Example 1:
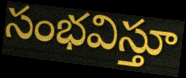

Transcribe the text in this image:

సంభవిస్తూ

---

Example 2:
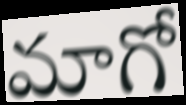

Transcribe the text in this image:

మాగో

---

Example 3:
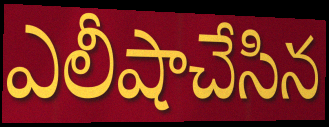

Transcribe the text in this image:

ఎలీషాచేసిన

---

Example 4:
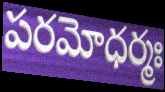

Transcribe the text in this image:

పరమోధర్మః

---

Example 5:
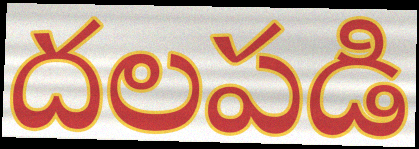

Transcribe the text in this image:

దలపడి